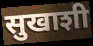
सुखाशी